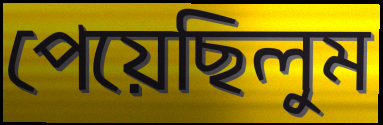
পেয়েছিলুম